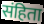
संहिता